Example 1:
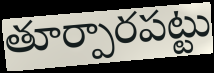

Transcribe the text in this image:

తూర్పారపట్టు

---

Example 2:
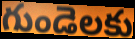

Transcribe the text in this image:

గుండెలకు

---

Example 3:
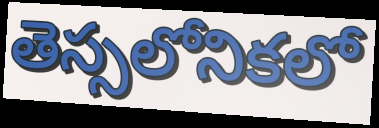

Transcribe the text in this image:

తెస్సలోనికలో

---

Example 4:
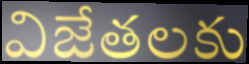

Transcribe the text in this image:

విజేతలకు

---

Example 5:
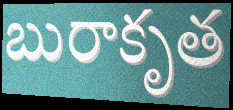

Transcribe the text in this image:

బురాకృత